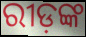
ରୀଡ଼ଙ୍କ